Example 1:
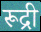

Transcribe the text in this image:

रूद्री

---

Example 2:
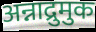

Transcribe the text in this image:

अन्नाद्रुमुक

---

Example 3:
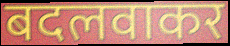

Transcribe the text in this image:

बदलवाकर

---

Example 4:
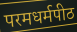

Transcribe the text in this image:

परमधर्मपीठ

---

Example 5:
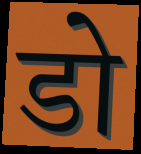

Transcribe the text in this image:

डो